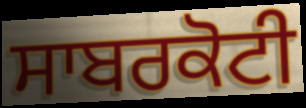
ਸਾਬਰਕੋਟੀ